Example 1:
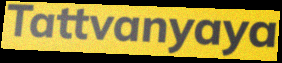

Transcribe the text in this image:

Tattvanyaya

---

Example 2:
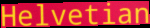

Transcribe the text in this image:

Helvetian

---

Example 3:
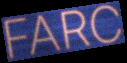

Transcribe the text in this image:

FARC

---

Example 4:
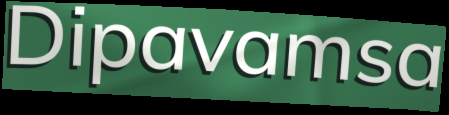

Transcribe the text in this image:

Dipavamsa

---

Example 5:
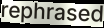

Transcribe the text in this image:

rephrased